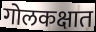
गोलकक्षात